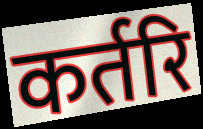
कर्तरि